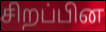
சிறப்பின